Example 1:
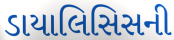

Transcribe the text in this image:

ડાયાલિસિસની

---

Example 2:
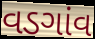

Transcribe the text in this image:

વડગાંવ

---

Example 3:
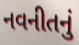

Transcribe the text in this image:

નવનીતનું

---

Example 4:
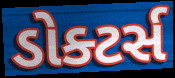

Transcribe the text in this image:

ડોક્ટર્સ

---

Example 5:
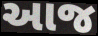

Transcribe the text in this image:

આજ